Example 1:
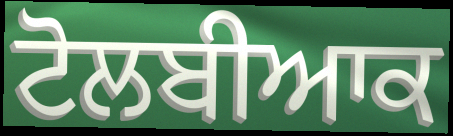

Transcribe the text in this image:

ਟੋਲਬੀਆਕ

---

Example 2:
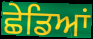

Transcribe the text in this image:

ਛੇਡਿਆਂ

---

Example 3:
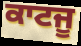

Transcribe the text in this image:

ਕਾਟਜੂ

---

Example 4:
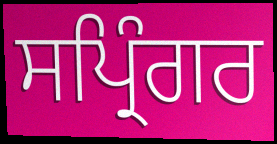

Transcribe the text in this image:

ਸਪ੍ਰਿੰਗਰ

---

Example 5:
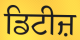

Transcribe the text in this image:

ਡਿਟੀਜ਼